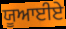
ਯੂਆਈਏ